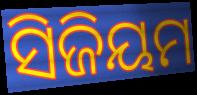
ସିଜିୟମ